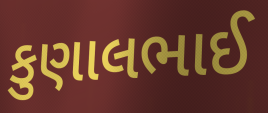
કુણાલભાઈ